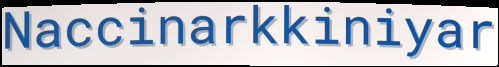
Naccinarkkiniyar